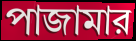
পাজামার